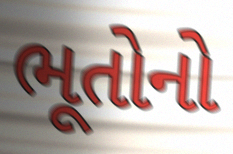
ભૂતોનો